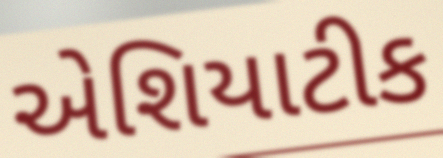
એશિયાટીક